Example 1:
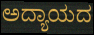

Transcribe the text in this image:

ಅದ್ಯಾಯದ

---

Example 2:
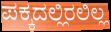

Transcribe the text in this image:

ಪಕ್ಕದಲ್ಲಿರಲಿಲ್ಲ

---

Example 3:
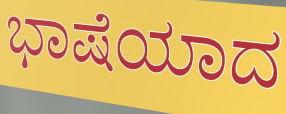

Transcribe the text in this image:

ಭಾಷೆಯಾದ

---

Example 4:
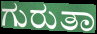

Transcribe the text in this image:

ಗುರುತಾ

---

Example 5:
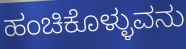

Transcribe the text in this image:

ಹಂಚಿಕೊಳ್ಳುವನು